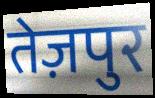
तेज़पुर